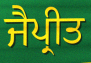
ਜੈਪ੍ਰੀਤ